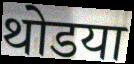
थोडया